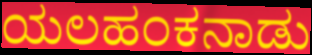
ಯಲಹಂಕನಾಡು